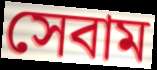
সেবাম